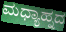
ಮಧ್ಯಾಹ್ನದ